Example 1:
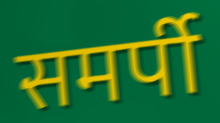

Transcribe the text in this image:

समर्पी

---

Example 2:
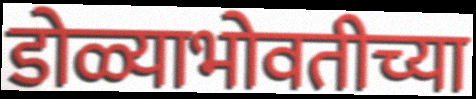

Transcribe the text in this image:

डोळ्याभोवतीच्या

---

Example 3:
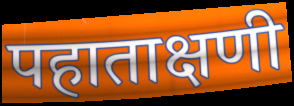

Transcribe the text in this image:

पहाताक्षणी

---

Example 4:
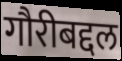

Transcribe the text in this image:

गौरीबद्दल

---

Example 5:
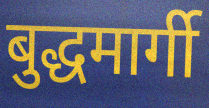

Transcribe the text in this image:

बुद्धमार्गी